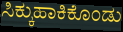
ಸಿಕ್ಕುಹಾಕಿಕೊಂಡು